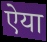
ऐया